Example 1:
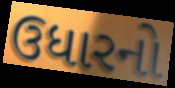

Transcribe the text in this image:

ઉધારનો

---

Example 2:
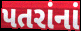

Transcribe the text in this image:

પતરાંનાં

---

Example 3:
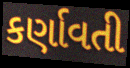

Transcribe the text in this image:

કર્ણાવતી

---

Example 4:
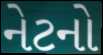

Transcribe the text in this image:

નેટનો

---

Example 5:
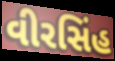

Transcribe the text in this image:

વીરસિંહ